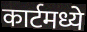
कार्टमध्ये